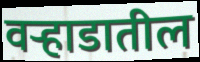
वर्‍हाडातील